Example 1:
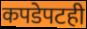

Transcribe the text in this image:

कपडेपटही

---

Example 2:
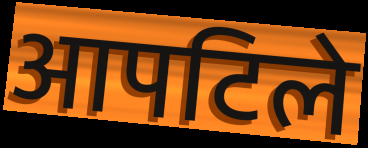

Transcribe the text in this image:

आपटिले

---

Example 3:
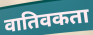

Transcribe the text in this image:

वातिवकता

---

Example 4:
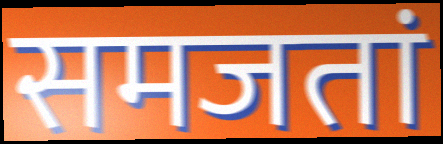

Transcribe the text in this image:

समजतां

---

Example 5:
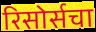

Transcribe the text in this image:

रिसोर्सचा